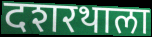
दशरथाला